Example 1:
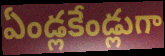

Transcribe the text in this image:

ఏండ్లకేండ్లుగా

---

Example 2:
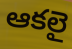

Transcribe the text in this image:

ఆకలై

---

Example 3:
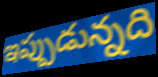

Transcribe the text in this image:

ఇప్పుడున్నది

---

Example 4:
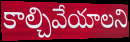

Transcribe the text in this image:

కాల్చివేయాలని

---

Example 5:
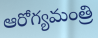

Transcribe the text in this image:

ఆరోగ్యమంత్రి